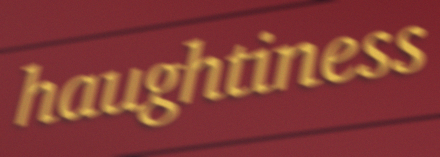
haughtiness